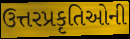
ઉત્તરપ્રકૃતિઓની